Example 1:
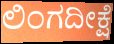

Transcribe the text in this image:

ಲಿಂಗದೀಕ್ಷೆ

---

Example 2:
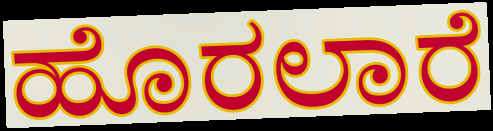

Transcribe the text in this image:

ಹೊರಲಾರೆ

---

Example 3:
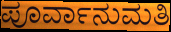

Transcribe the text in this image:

ಪೂರ್ವಾನುಮತಿ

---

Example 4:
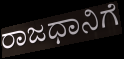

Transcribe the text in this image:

ರಾಜಧಾನಿಗೆ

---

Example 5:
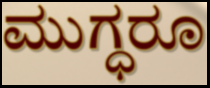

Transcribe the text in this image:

ಮುಗ್ಧರೂ